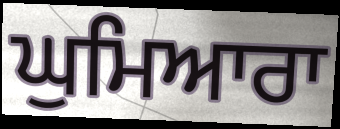
ਘੁਮਿਆਰਾ